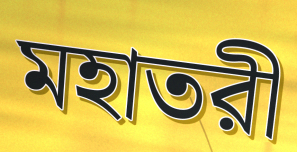
মহাতরী